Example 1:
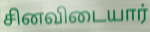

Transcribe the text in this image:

சினவிடையார்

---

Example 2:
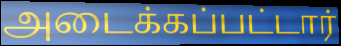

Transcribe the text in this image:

அடைக்கப்பட்டார்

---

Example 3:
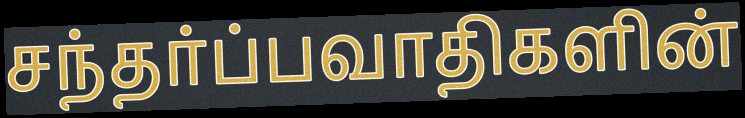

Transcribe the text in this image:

சந்தர்ப்பவாதிகளின்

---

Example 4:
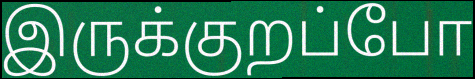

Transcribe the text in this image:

இருக்குறப்போ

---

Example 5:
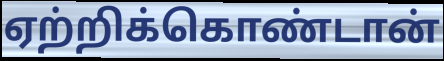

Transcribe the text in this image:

ஏற்றிக்கொண்டான்